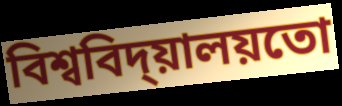
বিশ্ববিদ্য়ালয়তো